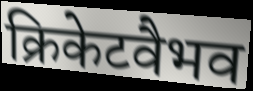
क्रिकेटवैभव